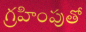
గ్రహింపుతో